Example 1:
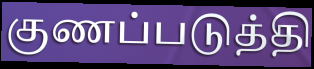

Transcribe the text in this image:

குணப்படுத்தி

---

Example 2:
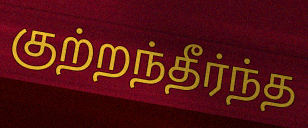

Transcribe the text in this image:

குற்றந்தீர்ந்த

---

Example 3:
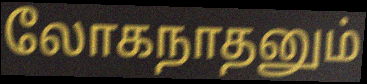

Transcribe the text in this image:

லோகநாதனும்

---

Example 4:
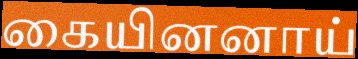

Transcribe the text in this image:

கையினனாய்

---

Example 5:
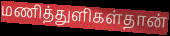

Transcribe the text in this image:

மணித்துளிகள்தான்